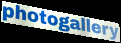
photogallery